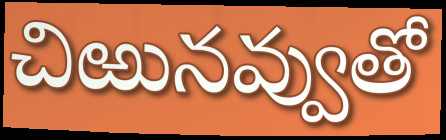
చిఱునవ్వుతో